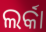
ଲର୍କା